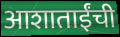
आशाताईंची